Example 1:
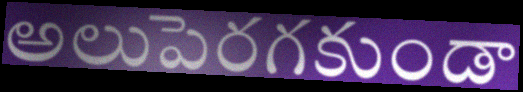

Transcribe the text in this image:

అలుపెరగకుండా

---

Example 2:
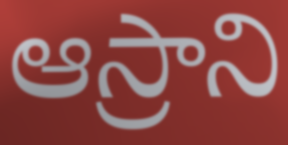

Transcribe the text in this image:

ఆస్రాని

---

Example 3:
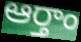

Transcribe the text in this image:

ఆర్తాం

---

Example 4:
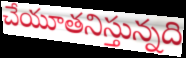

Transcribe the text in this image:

చేయూతనిస్తున్నది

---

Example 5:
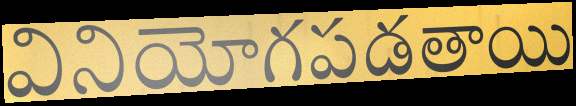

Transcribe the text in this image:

వినియోగపడతాయి